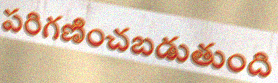
పరిగణించబడుతుంది